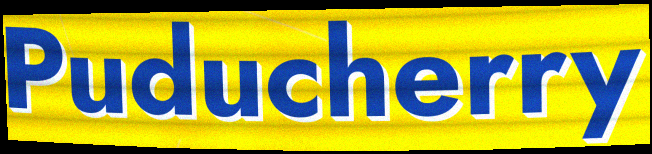
Puducherry